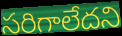
సరిగాలేదని